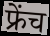
फ्रेंच